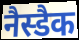
नैस्डैक